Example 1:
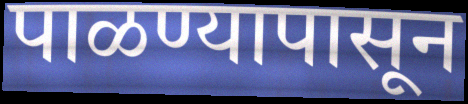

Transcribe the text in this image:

पाळण्यापासून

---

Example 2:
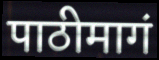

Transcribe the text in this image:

पाठीमागं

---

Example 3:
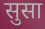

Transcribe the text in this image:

सुसा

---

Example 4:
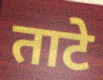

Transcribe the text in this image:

ताटे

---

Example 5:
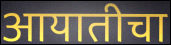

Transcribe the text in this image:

आयातीचा